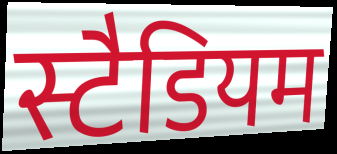
स्टैडियम